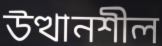
উত্থানশীল